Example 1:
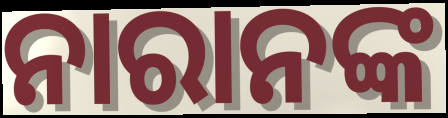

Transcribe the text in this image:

ନାରାନଙ୍କ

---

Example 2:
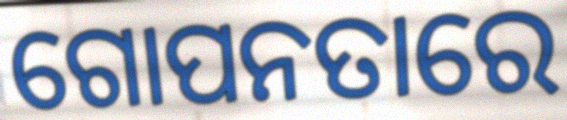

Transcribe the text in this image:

ଗୋପନତାରେ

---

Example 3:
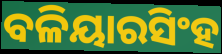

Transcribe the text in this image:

ବଳିୟାରସିଂହ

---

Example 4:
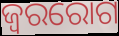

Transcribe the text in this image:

ଜ୍ୱରରୋଗ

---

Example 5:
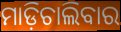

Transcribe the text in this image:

ମାଡ଼ିଚାଲିବାର